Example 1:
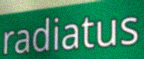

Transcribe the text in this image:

radiatus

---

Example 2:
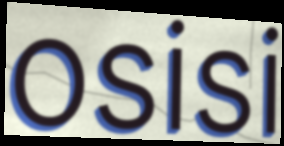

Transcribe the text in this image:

osisi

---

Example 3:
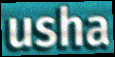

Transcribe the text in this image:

usha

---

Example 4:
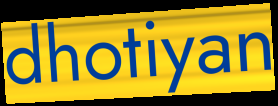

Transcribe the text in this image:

dhotiyan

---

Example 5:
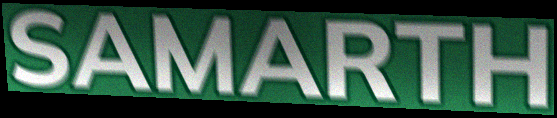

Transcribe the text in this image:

SAMARTH